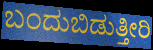
ಬಂದುಬಿಡುತ್ತೀರಿ